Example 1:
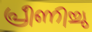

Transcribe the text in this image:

പ്രീണിച്ചു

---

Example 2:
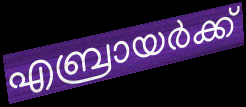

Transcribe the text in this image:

എബ്രായർക്ക്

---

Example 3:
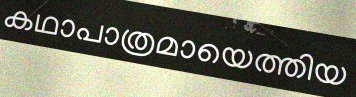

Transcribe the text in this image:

കഥാപാത്രമായെത്തിയ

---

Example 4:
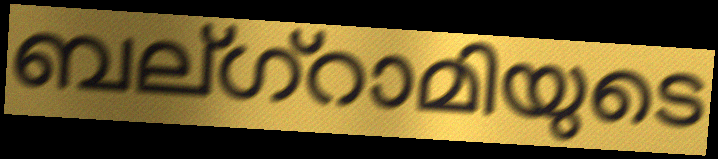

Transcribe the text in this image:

ബല്ഗ്റാമിയുടെ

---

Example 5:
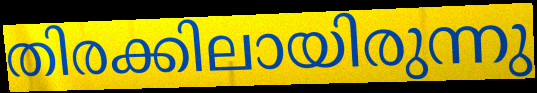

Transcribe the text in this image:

തിരക്കിലായിരുന്നു